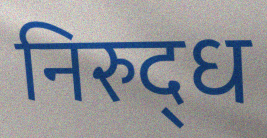
निरुद्ध